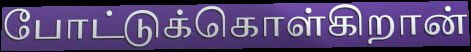
போட்டுக்கொள்கிறான்